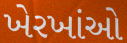
ખેરખાંઓ